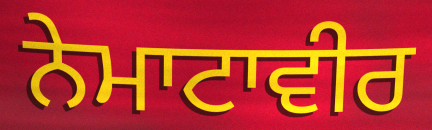
ਨੇਮਾਟਾਵੀਰ